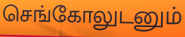
செங்கோலுடனும்